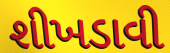
શીખડાવી